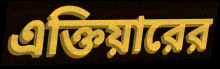
এক্তিয়ারের